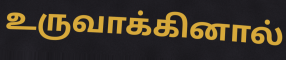
உருவாக்கினால்